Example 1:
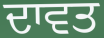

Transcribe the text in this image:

ਦਾਵਤ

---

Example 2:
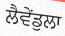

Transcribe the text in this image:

ਲੈਵੇਂਡੁਲਾ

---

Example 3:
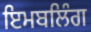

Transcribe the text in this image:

ਇਮਬਲਿੰਗ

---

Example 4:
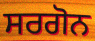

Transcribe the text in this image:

ਸਰਗੋਨ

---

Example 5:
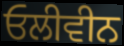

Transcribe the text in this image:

ਓਲੀਵੀਨ